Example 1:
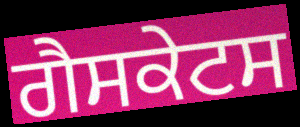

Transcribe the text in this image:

ਗੈਸਕੇਟਸ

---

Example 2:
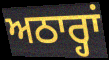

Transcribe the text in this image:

ਅਠਾਰ੍ਹਾਂ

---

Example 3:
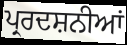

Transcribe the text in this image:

ਪ੍ਰਰਦਸ਼ਨੀਆਂ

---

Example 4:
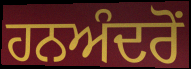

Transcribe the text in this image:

ਹਨਅੰਦਰੋਂ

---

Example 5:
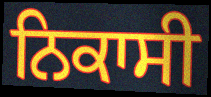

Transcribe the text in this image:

ਨਿਕਾਸੀ